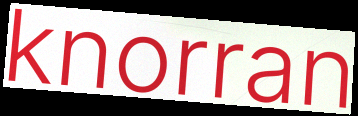
knorran